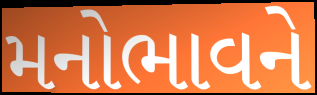
મનોભાવને